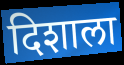
दिशाला